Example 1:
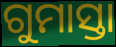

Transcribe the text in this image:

ଗୁମାସ୍ତା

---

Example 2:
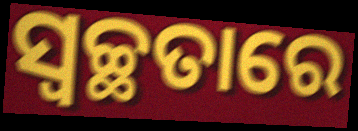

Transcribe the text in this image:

ସ୍ବଚ୍ଛତାରେ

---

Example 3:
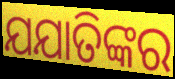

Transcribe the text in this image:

ଯଯାତିଙ୍କର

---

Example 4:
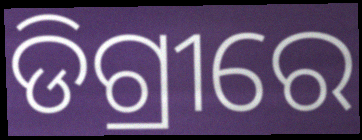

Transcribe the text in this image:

ଡିଗ୍ରୀରେ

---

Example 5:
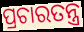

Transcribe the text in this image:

ପ୍ରଚାରତନ୍ତ୍ର